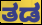
ತಡ